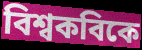
বিশ্বকবিকে